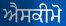
ਐਸਕੀਮੋ